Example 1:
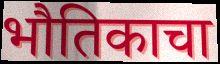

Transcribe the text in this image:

भौतिकाचा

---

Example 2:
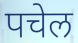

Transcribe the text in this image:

पचेल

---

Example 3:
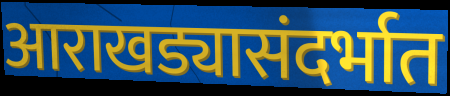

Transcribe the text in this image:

आराखड्यासंदर्भात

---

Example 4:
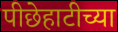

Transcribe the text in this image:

पीछेहाटीच्या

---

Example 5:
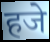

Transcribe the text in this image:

हजे